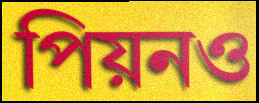
পিয়নও